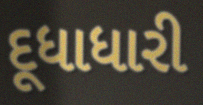
દૂધાધારી